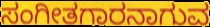
ಸಂಗೀತಗಾರನಾಗುವ